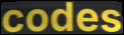
codes